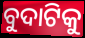
ବୁଦାଟିକୁ